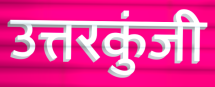
उत्तरकुंजी